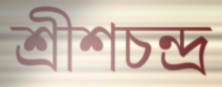
শ্রীশচন্দ্র